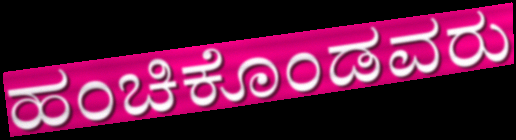
ಹಂಚಿಕೊಂಡವರು